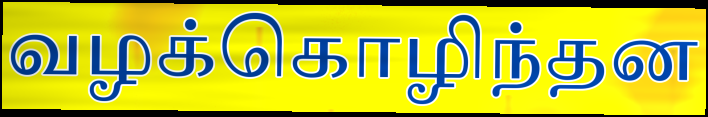
வழக்கொழிந்தன